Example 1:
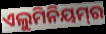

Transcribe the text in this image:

ଏଲୁମିନିୟମ୍‌ର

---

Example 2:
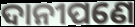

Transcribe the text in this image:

ଦାନୀପଣେ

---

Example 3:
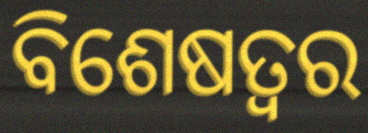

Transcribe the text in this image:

ବିଶେଷତ୍ବର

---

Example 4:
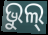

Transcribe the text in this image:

ଭୁଲ୍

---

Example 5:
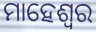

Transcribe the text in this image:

ମାହେଶ୍ଵର